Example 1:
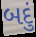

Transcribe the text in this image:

બદું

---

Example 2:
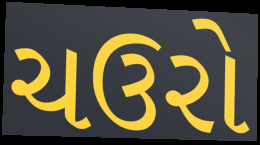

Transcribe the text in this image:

ચઉરો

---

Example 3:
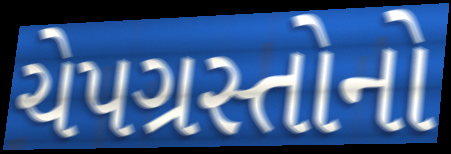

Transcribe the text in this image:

ચેપગ્રસ્તોનો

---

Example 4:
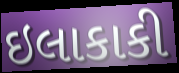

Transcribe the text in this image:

ઇલાકાકી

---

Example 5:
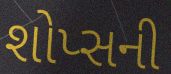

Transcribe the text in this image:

શોપ્સની